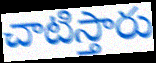
చాటిస్తారు